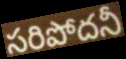
సరిపోదనీ